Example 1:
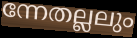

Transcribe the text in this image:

ന്നേതല്ലലും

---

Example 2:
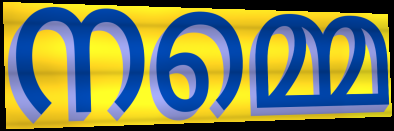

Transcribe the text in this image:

നമ്മെ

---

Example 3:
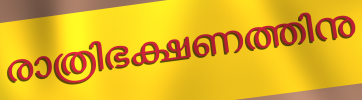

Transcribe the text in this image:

രാത്രിഭക്ഷണത്തിനു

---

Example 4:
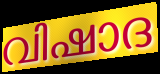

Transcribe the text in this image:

വിഷാദ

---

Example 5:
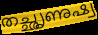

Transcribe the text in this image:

തച്ഛൃണുഷ്വ